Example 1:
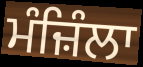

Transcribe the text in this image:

ਮੰਜ਼ਿੰਲਾ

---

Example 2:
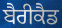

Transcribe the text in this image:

ਬੈਰੀਕੈਡ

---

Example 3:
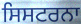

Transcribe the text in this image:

ਸਿਸਟਰਨਾ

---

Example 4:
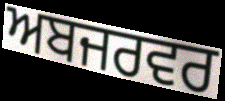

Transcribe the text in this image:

ਅਬਜਰਵਰ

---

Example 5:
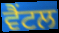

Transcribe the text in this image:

ਵੈਂਟਲ